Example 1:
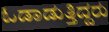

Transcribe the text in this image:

ಓಡಾಡುತ್ತಿದ್ದರು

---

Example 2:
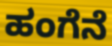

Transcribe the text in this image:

ಹಂಗೆನೆ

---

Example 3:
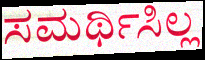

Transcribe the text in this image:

ಸಮರ್ಥಿಸಿಲ್ಲ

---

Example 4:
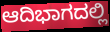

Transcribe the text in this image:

ಆದಿಭಾಗದಲ್ಲಿ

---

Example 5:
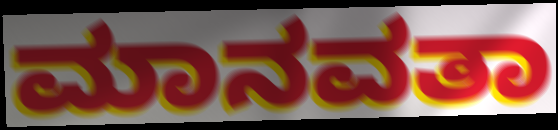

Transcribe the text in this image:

ಮಾನವತಾ